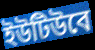
ইউটিউবে